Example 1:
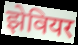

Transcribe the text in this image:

झेवियर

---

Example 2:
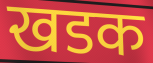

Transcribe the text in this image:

खडक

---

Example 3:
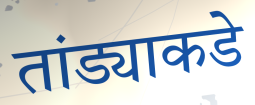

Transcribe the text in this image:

तांड्याकडे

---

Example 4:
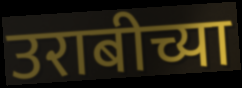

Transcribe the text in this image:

उराबीच्या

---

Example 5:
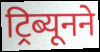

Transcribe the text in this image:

ट्रिब्यूनने